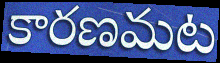
కారణమట